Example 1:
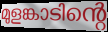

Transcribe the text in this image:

മുളങ്കാടിന്റെ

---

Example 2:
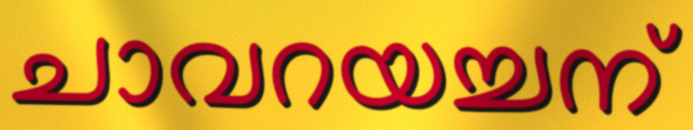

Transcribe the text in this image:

ചാവറയച്ചന്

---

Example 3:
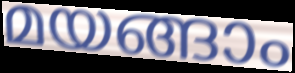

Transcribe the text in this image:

മയങ്ങാം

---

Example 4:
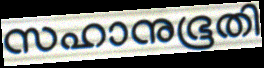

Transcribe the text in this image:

സഹാനുഭൂതി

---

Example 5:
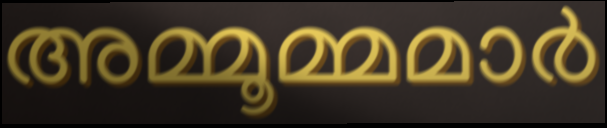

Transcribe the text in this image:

അമ്മൂമ്മമാർ